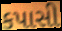
કપાસી